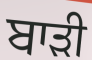
ਬਾੜੀ